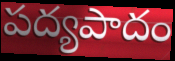
పద్యపాదం